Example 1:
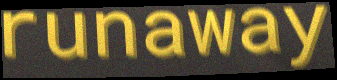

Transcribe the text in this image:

runaway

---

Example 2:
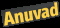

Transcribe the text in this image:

Anuvad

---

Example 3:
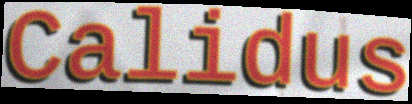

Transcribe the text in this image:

Calidus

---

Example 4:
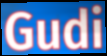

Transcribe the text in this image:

Gudi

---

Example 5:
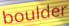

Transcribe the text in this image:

boulder